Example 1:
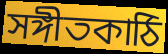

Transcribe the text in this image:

সঙ্গীতকাঠি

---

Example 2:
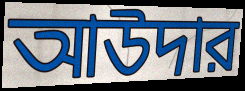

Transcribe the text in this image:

আউদার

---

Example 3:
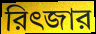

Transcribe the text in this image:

রিৎজার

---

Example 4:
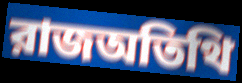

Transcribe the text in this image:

রাজঅতিথি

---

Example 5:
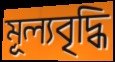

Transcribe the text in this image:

মূল্যবৃদ্ধি